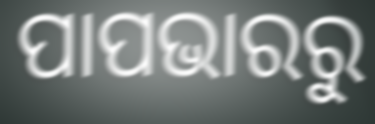
ପାପଭାରରୁ